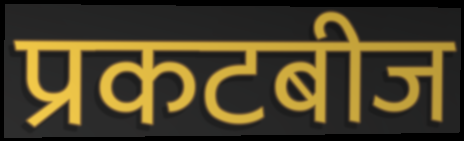
प्रकटबीज